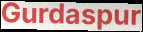
Gurdaspur